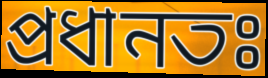
প্রধানতঃ